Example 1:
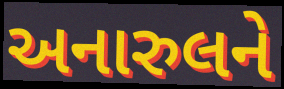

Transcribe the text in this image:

અનારુલને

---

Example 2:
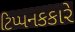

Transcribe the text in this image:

ટિપ્પનકકારે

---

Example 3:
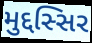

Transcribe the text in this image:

મુદ્દસ્સિર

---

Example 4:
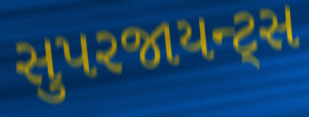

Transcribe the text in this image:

સુપરજાયન્ટ્સ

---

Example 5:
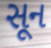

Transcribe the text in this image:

સૂન